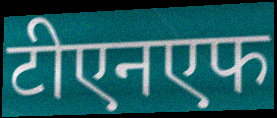
टीएनएफ